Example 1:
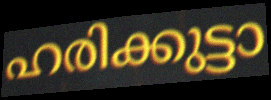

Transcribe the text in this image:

ഹരിക്കുട്ടാ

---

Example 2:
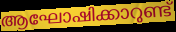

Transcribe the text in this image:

ആഘോഷിക്കാറുണ്ട്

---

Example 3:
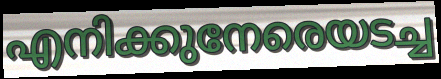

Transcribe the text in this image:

എനിക്കുനേരെയടച്ച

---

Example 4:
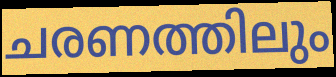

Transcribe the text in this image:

ചരണത്തിലും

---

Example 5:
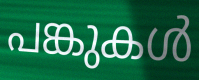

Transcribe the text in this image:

പങ്കുകൾ